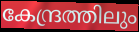
കേന്ദ്രത്തിലും